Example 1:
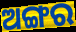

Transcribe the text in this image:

ଅଙ୍ଗର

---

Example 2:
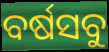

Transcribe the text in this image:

ବର୍ଷସବୁ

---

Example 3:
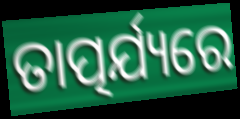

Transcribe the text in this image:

ତାତ୍ପର୍ଯ୍ୟରେ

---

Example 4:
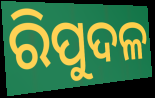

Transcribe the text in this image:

ରିପୁଦଳ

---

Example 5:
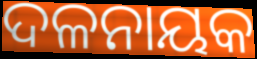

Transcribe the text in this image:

ଦଳନାୟକ